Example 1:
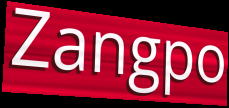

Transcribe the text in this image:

Zangpo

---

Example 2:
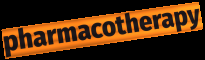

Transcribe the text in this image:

pharmacotherapy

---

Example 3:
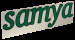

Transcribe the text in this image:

samya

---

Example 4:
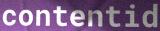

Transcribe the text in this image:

contentid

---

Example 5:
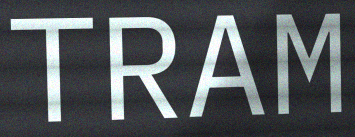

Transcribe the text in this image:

TRAM